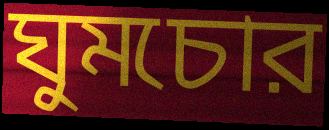
ঘুমচোর